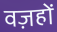
वज़हों